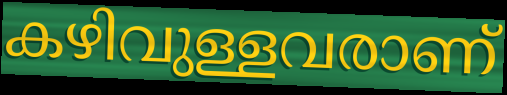
കഴിവുള്ളവരാണ്